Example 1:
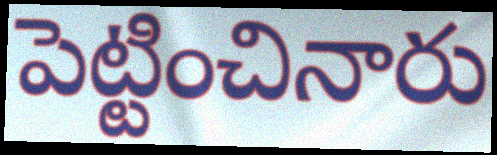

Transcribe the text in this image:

పెట్టించినారు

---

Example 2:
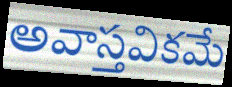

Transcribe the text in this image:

అవాస్తవికమే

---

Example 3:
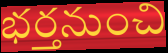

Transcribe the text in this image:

భర్తనుంచి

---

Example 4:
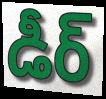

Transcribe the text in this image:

డీర్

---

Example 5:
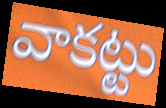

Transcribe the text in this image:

వాకట్టు